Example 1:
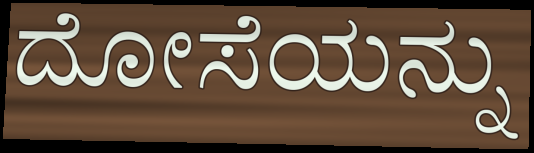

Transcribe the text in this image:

ದೋಸೆಯನ್ನು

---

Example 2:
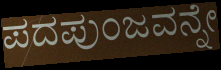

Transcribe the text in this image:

ಪದಪುಂಜವನ್ನೇ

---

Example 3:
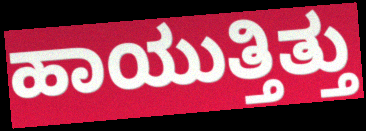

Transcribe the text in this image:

ಹಾಯುತ್ತಿತ್ತು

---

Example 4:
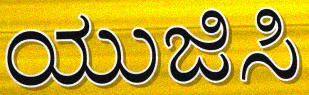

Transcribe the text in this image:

ಯುಜಿಸಿ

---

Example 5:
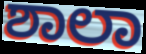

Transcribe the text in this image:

ಶಾಲಾ